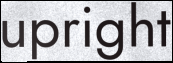
upright